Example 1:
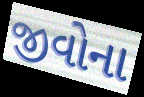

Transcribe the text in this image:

જીવોના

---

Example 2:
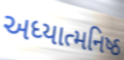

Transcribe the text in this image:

અધ્યાત્મનિષ્ઠ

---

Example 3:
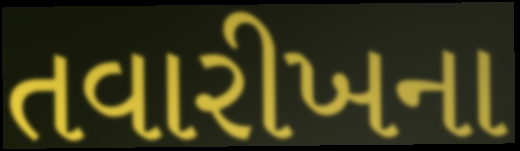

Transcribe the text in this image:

તવારીખના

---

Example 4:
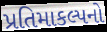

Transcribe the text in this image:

પ્રતિમાકલ્પનો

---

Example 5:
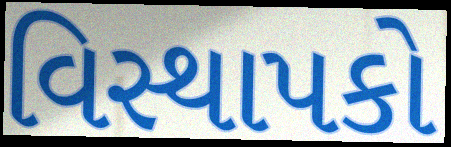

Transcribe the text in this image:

વિસ્થાપકો